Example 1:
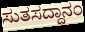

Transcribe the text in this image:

ಸುತಸದ್ದಾನಂ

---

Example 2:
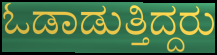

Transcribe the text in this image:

ಓಡಾಡುತ್ತಿದ್ದರು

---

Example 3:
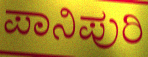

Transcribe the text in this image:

ಪಾನಿಪುರಿ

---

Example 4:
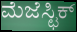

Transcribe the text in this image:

ಮೆಜೆಸ್ಟಿಕ್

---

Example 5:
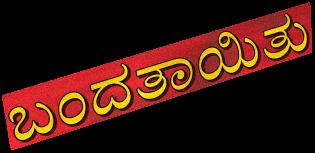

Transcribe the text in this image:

ಬಂದತಾಯಿತು